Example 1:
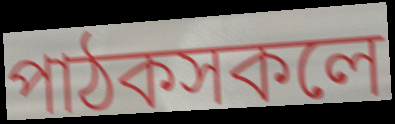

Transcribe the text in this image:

পাঠকসকলে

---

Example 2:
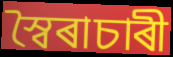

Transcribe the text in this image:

স্বৈৰাচাৰী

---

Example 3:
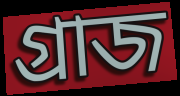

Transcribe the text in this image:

গ্ৰাজ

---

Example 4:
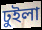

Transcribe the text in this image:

ঢুইলা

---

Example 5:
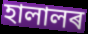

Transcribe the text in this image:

হালালৰ